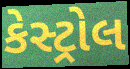
કેસ્ટ્રોલ